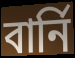
বার্নি